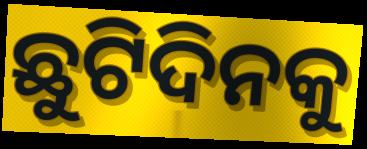
ଛୁଟିଦିନକୁ